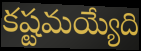
కష్టమయ్యేది